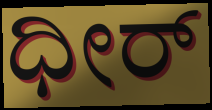
ಧೀರ್